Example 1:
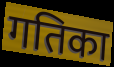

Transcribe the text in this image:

गतिका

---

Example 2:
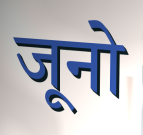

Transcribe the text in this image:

जूनो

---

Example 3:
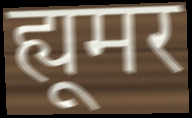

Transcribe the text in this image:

ह्यूमर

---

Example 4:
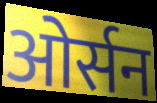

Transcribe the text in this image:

ओर्सन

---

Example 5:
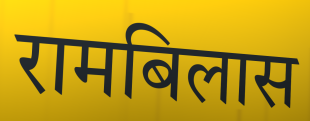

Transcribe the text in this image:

रामबिलास